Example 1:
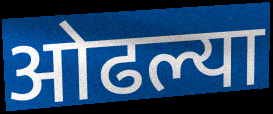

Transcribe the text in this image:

ओढल्या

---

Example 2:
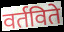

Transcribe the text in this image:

वर्तविते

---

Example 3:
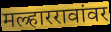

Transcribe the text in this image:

मल्हाररावांवर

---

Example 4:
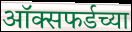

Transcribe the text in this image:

ऑक्सफर्डच्या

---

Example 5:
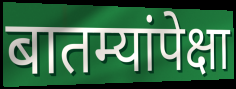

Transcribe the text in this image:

बातम्यांपेक्षा